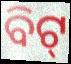
ବିଟ୍